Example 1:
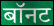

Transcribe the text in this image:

बॉनट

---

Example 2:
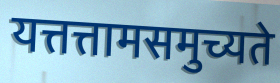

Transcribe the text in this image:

यत्तत्तामसमुच्यते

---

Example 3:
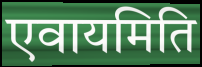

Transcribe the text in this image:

एवायमिति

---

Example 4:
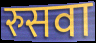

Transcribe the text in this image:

रुसवा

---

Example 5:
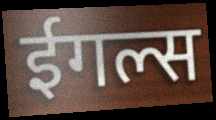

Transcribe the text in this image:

ईगल्स